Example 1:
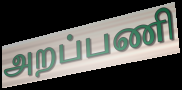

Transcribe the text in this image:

அறப்பணி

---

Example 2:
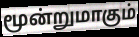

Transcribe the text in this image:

மூன்றுமாகும்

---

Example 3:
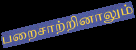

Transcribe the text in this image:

பறைசாற்றினாலும்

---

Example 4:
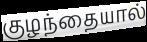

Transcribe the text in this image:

குழந்தையால்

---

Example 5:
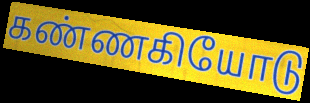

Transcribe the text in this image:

கண்ணகியோடு